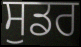
ਸੁਡਰ